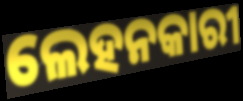
ଲେହନକାରୀ